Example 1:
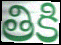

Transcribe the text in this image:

తికి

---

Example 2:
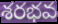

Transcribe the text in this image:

శరభవ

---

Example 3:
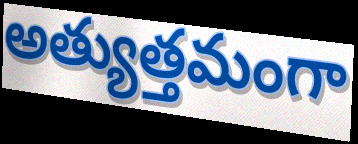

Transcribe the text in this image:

అత్యుత్తమంగా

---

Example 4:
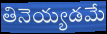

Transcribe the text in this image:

తినెయ్యడమే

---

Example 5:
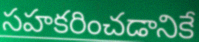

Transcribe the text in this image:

సహకరించడానికే